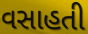
વસાહતી